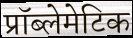
प्रॉब्लेमेटिक